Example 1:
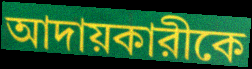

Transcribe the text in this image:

আদায়কারীকে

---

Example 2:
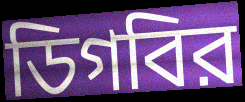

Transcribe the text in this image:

ডিগবির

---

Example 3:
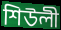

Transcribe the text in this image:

শিউলী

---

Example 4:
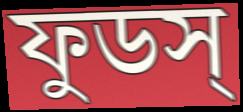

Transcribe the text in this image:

ফুডস্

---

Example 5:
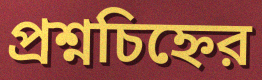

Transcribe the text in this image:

প্রশ্নচিহ্নের